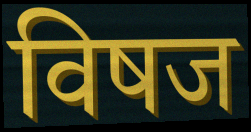
विषज